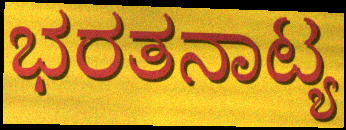
ಭರತನಾಟ್ಯ